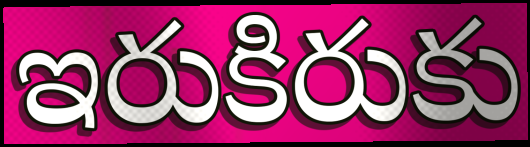
ఇరుకిరుకు